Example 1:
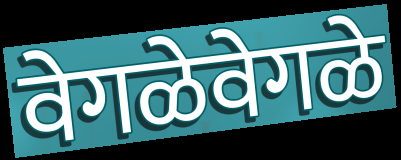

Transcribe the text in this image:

वेगळेवेगळे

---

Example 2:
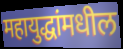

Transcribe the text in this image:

महायुद्धांमधील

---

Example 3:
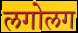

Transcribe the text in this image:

लगोलग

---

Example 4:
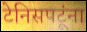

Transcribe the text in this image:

टेनिसपटूंना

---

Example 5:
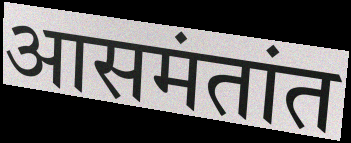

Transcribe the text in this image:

आसमंतांत